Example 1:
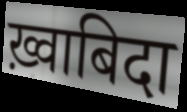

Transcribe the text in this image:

ख़्वाबिदा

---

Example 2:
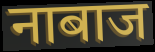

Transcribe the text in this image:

नाबाज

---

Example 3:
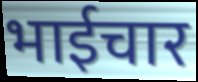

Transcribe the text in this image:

भाईचार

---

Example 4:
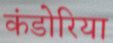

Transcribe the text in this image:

कंडोरिया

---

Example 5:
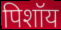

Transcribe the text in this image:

पिशॉय